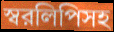
স্বরলিপিসহ